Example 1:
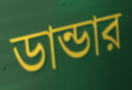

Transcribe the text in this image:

ডান্ডার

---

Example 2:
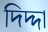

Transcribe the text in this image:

দিদ্দা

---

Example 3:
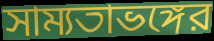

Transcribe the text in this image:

সাম্যতাভঙ্গের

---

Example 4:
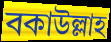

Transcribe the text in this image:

বকাউল্লাহ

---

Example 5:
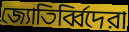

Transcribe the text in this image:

জ্যোতির্ব্বিদেরা